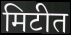
मिटीत